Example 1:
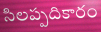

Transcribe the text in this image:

సిలప్పదికారం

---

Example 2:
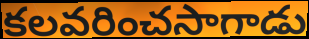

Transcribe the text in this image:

కలవరించసాగాడు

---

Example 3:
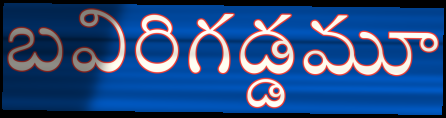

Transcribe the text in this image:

బవిరిగడ్డమూ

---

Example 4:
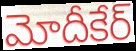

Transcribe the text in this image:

మోదీకేర్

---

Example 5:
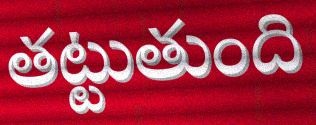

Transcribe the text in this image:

తట్టుతుంది